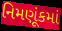
નિમણૂંકમાં